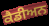
ਕੈਡੀਅਨ